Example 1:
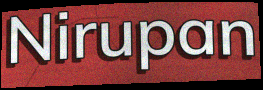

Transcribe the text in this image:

Nirupan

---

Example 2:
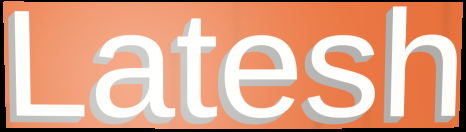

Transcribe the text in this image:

Latesh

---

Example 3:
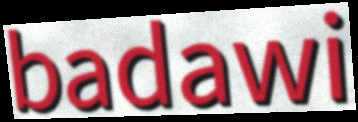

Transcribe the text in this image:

badawi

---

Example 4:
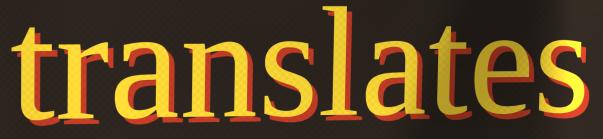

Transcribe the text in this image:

translates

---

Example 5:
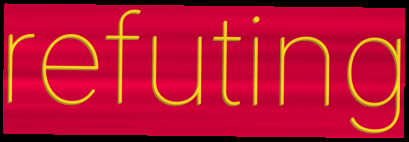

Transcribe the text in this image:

refuting